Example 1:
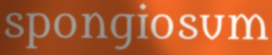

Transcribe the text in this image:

spongiosum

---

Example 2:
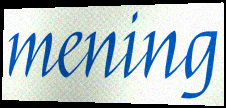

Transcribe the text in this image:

mening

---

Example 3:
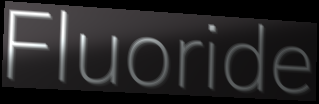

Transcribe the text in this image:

Fluoride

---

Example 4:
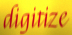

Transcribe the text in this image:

digitize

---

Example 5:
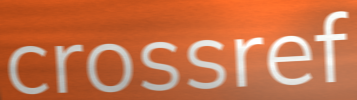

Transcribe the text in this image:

crossref